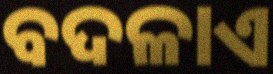
ବଦଳାଏ